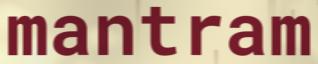
mantram